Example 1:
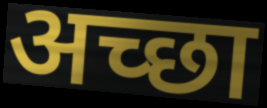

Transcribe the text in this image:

अच्‍छा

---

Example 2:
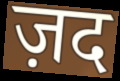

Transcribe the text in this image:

ज़द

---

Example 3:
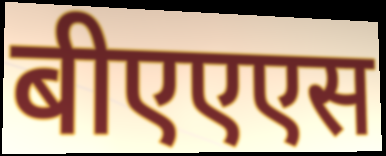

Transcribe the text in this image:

बीएएएस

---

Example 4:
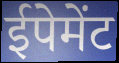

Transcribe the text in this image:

ईपेमेंट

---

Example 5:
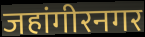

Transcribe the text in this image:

जहांगीरनगर